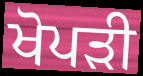
ਖੋਪੜੀ